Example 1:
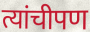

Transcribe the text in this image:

त्यांचीपण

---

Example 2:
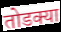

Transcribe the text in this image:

तोडक्या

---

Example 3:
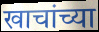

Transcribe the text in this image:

खाचांच्या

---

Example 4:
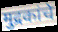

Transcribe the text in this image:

मुद्रकांचे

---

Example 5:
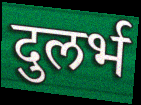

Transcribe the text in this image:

दुलर्भ